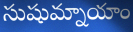
సుషుమ్నాయాం